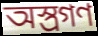
অস্ত্রগণ